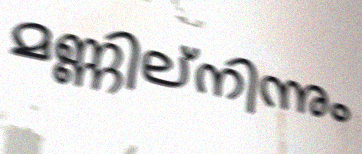
മണ്ണില്നിന്നും